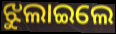
ଝୁଲାଇଲେ